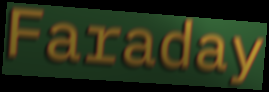
Faraday